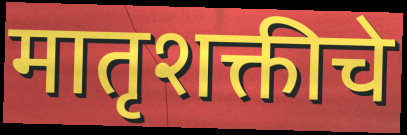
मातृशक्तीचे